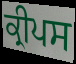
ਕ੍ਰੀਪਸ